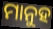
ମାନୁହ